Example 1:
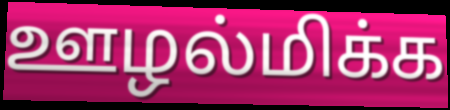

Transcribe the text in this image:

ஊழல்மிக்க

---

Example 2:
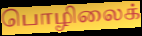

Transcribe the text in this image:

பொழிலைக்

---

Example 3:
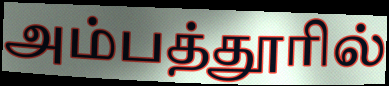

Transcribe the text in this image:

அம்பத்தூரில்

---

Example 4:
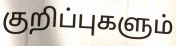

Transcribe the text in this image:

குறிப்புகளும்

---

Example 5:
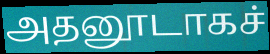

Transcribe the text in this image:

அதனூடாகச்